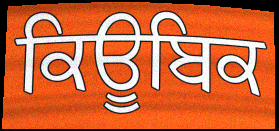
ਕਿਊਬਿਕ